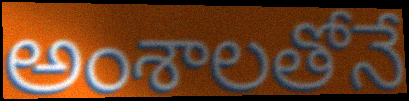
అంశాలతోనే